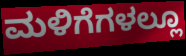
ಮಳಿಗೆಗಳಲ್ಲೂ